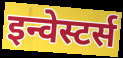
इन्वेस्टर्स